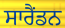
ਸਾਰੈਂਡਨ